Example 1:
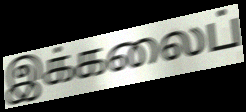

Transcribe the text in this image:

இக்கலைப்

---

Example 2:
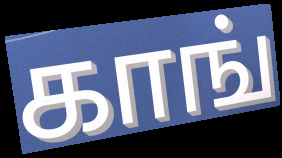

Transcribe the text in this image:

காங்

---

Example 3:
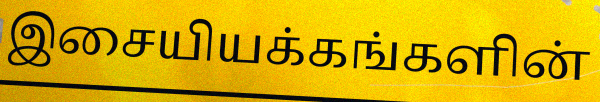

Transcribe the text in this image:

இசையியக்கங்களின்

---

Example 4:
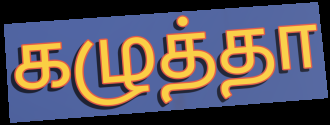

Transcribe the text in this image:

கழுத்தா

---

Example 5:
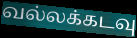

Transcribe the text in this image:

வல்லக்கடவு